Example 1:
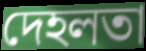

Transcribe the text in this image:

দেহলতা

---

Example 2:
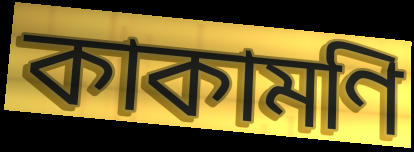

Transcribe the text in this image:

কাকামণি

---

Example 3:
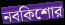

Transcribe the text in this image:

নবকিশোর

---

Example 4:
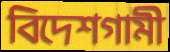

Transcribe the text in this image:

বিদেশগামী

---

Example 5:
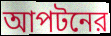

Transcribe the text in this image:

আপটনের